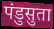
पंडुसुता